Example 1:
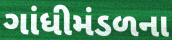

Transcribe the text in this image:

ગાંધીમંડળના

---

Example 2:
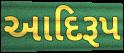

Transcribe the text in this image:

આદિરૂપ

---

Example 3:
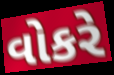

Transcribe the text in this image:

વોકરે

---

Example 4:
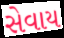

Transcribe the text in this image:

સેવાય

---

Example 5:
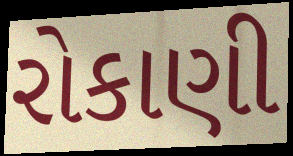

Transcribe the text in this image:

રોકાણી